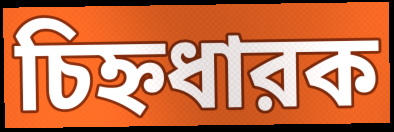
চিহ্নধারক